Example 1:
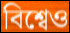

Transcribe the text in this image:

বিশ্বেও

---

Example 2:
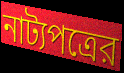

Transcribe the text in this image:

নাট্যপত্রের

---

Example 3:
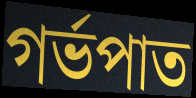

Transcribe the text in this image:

গর্ভপাত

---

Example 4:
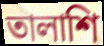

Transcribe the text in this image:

তালাশি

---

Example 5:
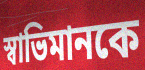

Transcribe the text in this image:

স্বাভিমানকে